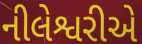
નીલેશ્વરીએ